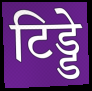
टिड्डे